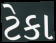
ટેકા